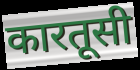
कारतूसी